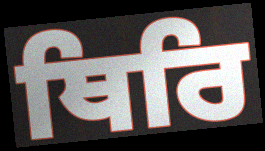
ਥਿਰਿ